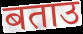
बताउ